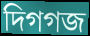
দিগগজ